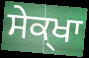
ਸੇਕ੍ਖਾ